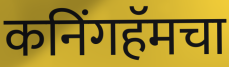
कनिंगहॅमचा